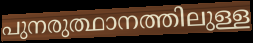
പുനരുത്ഥാനത്തിലുള്ള